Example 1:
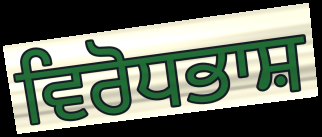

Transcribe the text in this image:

ਵਿਰੋਧਭਾਸ਼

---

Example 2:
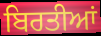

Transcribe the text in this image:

ਬਿਰਤੀਆਂ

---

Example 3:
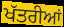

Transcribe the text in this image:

ਖੱਤਰੀਆਂ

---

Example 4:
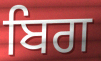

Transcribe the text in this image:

ਬਿਗ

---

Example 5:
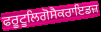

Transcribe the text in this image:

ਫਰੂਟੂਲਿਗੋਸੈਕਰਾਇਡਜ਼